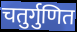
चतुर्गुणित